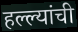
हल्ल्यांची